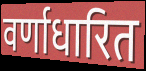
वर्णाधारित